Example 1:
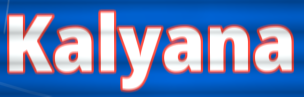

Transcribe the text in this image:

Kalyana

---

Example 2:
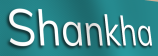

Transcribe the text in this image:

Shankha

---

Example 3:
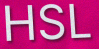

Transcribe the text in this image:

HSL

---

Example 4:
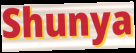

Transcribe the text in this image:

Shunya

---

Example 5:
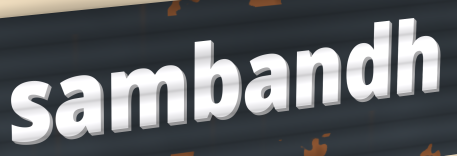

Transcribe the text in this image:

sambandh